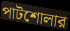
পাটশোলার